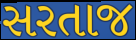
સરતાજ